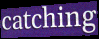
catching